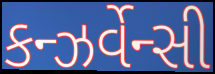
કન્ઝર્વેન્સી